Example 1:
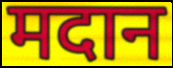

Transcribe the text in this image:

मदान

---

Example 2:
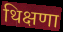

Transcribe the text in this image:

थिक्षणा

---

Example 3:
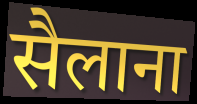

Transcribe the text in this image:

सैलाना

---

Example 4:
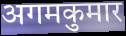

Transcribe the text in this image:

अगमकुमार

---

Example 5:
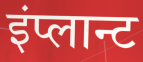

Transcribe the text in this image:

इंप्लान्ट